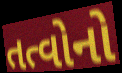
તત્વોનો